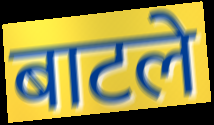
बाटले